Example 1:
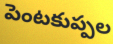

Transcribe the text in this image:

పెంటకుప్పల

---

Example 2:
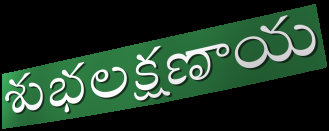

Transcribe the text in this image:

శుభలక్షణాయ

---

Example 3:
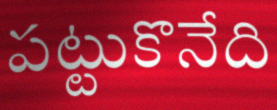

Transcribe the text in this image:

పట్టుకొనేది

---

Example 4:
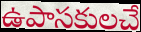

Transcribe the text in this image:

ఉపాసకులచే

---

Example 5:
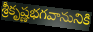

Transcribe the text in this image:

శ్రీకృష్ణభగవానునికి